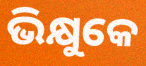
ଭିକ୍ଷୁକେ